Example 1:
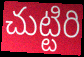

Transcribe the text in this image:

చుట్టిరి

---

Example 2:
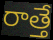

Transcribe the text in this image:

రాత్తే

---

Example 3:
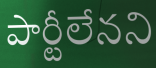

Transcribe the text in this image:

పార్టీలేనని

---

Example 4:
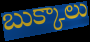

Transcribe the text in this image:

బుక్కాలు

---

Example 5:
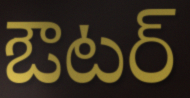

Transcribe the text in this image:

ఔటర్